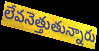
లేవనెత్తుతున్నారు